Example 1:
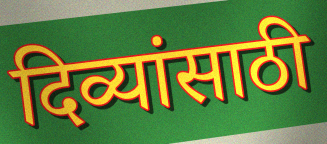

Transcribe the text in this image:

दिव्यांसाठी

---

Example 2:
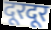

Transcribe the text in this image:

दूरदूर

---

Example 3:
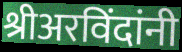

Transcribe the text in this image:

श्रीअरविंदांनी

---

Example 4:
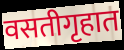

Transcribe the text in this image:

वसतीगृहात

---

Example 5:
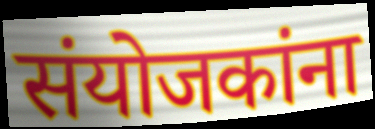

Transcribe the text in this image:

संयोजकांना